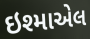
ઇશ્માએલ